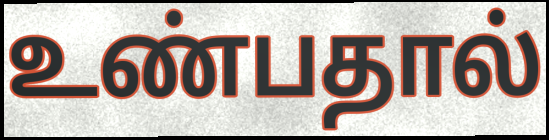
உண்பதால்